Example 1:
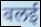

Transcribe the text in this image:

बलई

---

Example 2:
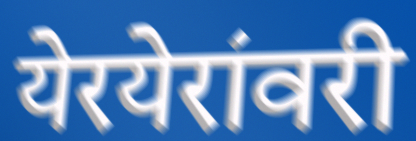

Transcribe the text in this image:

येरयेरांवरी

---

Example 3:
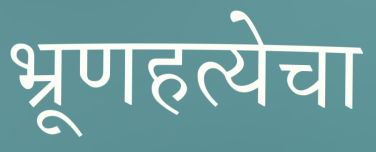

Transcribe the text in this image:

भ्रूणहत्येचा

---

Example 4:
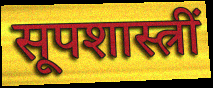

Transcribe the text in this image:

सूपशास्त्रीं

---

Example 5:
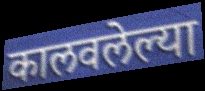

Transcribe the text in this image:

कालवलेल्या